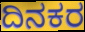
ದಿನಕರ